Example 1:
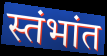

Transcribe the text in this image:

स्तंभांत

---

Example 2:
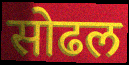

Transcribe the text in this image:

सोढल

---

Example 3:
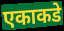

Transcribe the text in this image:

एकाकडे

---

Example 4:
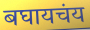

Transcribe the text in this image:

बघायचंय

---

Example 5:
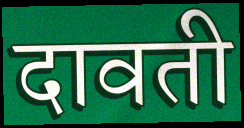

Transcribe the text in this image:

दावती